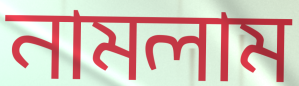
নামলাম